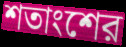
শতাংশের